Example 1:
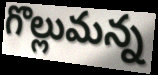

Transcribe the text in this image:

గొల్లుమన్న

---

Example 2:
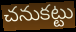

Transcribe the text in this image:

చనుకట్టు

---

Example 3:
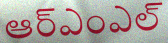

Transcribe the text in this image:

ఆర్ఎంఎల్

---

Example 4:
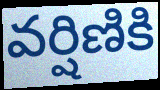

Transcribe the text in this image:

వర్షిణికి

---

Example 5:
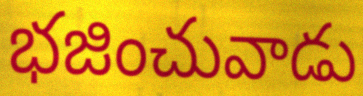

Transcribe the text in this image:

భజించువాడు